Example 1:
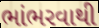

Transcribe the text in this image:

ભાંભરવાથી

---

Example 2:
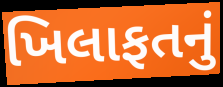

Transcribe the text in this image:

ખિલાફતનું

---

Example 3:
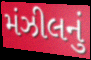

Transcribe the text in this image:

મંઝીલનું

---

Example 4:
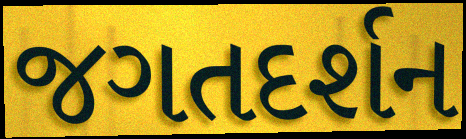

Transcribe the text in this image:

જગતદર્શન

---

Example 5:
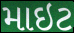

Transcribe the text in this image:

માઇટ